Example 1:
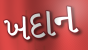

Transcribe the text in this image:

ખદાન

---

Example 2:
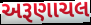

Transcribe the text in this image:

અરૂણાચલ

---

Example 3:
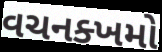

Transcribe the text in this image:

વચનક્ખમો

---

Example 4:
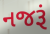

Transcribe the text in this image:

નજરૂં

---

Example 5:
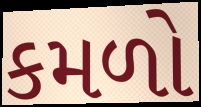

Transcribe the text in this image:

કમળો